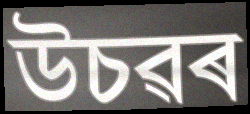
উচৱৰ